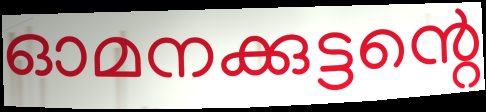
ഓമനക്കുട്ടന്റെ